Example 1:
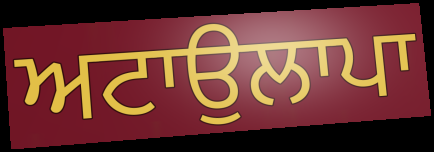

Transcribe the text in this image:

ਅਟਾਉਲਾਪਾ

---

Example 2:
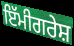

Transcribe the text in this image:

ਇੱਮੀਗਰੇਸ਼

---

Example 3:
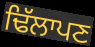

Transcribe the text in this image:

ਢਿੱਲਾਪਣ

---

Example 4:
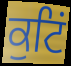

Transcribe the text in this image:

ਕੁਟਿਂ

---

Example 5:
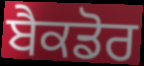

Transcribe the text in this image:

ਬੈਕਡੋਰ